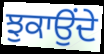
ਝੁਕਾਉੰਦੇ